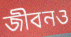
জীবনও